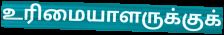
உரிமையாளருக்குக்